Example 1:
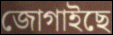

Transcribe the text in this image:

জোগাইছে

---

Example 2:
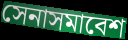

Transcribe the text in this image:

সেনাসমাবেশ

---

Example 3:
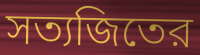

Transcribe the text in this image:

সত্যজিতের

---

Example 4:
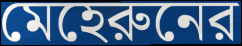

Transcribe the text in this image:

মেহেরুনের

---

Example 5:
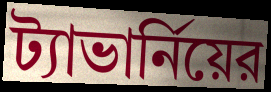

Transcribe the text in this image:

ট্যাভার্নিয়ের